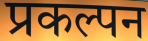
प्रकल्पन